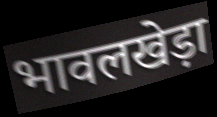
भावलखेड़ा